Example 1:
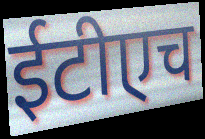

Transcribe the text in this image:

ईटीएच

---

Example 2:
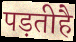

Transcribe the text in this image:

पड़तीहै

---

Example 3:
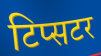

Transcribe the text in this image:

टिप्सटर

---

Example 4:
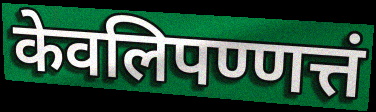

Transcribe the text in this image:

केवलिपण्णत्तं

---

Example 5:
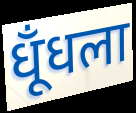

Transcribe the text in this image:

धूँधला